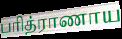
பரித்ராணாய